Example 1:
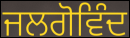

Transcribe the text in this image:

ਜਲਗੋਵਿੰਦ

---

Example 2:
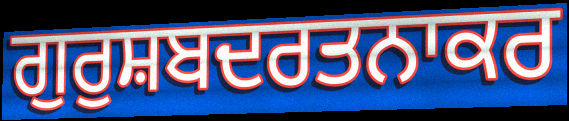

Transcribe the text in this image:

ਗੁਰੁਸ਼ਬਦਰਤਨਾਕਰ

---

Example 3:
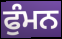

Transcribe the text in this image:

ਫੁੰਮਨ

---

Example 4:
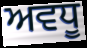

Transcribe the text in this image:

ਅਵਧੂ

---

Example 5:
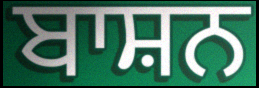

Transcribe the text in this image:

ਬਾਸ਼ਨ